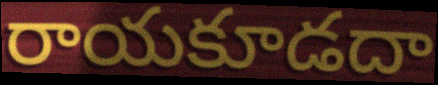
రాయకూడదా